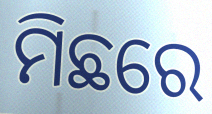
ମିଛରେ